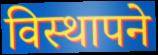
विस्थापने